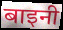
बाइनी